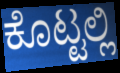
ಕೊಟ್ಟಲ್ಲಿ